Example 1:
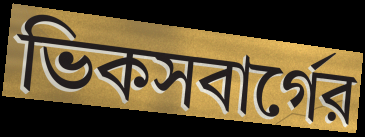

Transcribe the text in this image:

ভিকসবার্গের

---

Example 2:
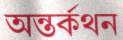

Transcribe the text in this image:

অন্তর্কথন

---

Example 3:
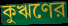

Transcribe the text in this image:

কুঋণের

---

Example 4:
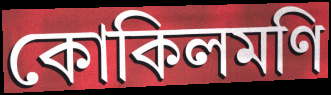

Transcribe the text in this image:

কোকিলমণি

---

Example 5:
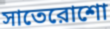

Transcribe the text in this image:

সাতেরোশো